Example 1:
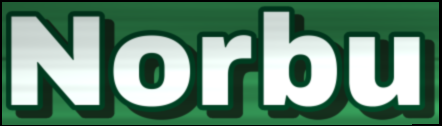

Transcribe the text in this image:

Norbu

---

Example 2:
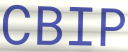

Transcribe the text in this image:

CBIP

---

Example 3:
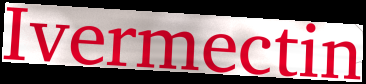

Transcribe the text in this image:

Ivermectin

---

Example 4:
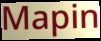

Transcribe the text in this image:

Mapin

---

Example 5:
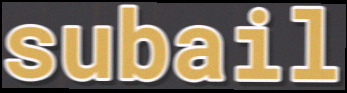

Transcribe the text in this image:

subail